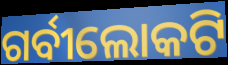
ଗର୍ବୀଲୋକଟି